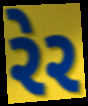
રેર